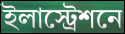
ইলাস্ট্রেশনে